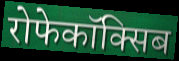
रोफेकॉक्सिब